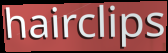
hairclips